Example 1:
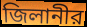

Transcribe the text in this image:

জিলানীর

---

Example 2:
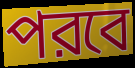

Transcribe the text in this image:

পরবে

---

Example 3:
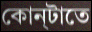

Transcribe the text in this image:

কোন্‌টাতে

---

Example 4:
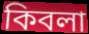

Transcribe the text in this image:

কিবলা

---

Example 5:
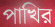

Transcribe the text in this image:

পাখির